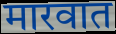
मारवात